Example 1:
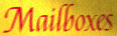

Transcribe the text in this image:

Mailboxes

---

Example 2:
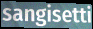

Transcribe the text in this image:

sangisetti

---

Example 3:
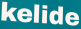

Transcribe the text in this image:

kelide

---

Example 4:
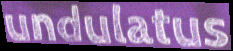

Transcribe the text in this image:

undulatus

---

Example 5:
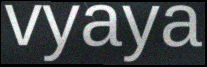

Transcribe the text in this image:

vyaya